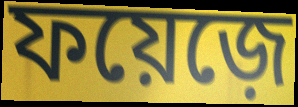
ফয়েজ়ে